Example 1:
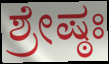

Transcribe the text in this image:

ಶ್ರೇಷ್ಠಃ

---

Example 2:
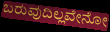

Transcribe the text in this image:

ಬರುವುದಿಲ್ಲವೇನೋ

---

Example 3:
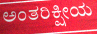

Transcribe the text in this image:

ಅಂತರಿಕ್ಷೀಯ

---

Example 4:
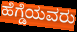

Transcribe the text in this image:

ಹೆಗ್ಡೆಯವರು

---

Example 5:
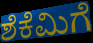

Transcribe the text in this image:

ಶೆಕೆಮಿಗೆ